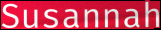
Susannah